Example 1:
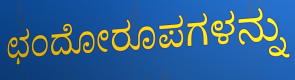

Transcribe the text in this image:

ಛಂದೋರೂಪಗಳನ್ನು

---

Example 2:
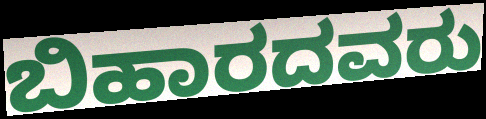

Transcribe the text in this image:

ಬಿಹಾರದವರು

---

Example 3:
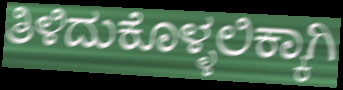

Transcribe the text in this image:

ತಿಳಿದುಕೊಳ್ಳಲಿಕ್ಕಾಗಿ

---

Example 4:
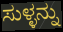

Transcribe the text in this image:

ಸುಳ್ಳನ್ನು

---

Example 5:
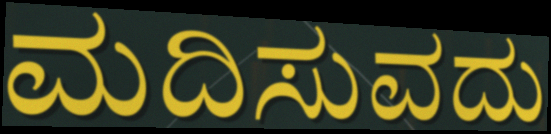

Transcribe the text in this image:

ಮದಿಸುವದು